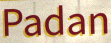
Padan